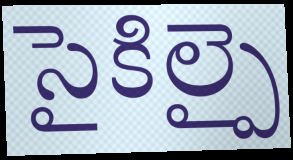
సైకిల్పై